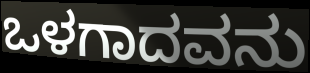
ಒಳಗಾದವನು